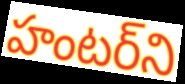
హంటర్‌ని